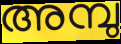
അമ്പു